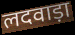
लदवाड़ा